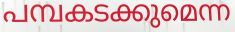
പമ്പകടക്കുമെന്ന